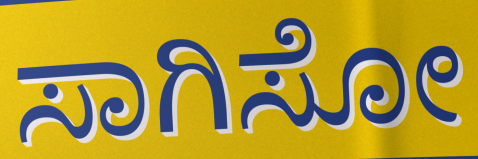
ಸಾಗಿಸೋ